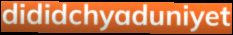
dididchyaduniyet